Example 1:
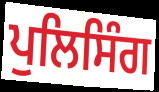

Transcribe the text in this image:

ਪੁਲਿਸਿੰਗ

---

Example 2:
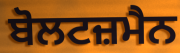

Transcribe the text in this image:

ਬੋਲਟਜ਼ਮੈਨ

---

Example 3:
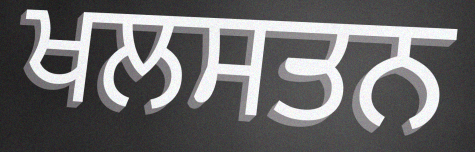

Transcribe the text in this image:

ਖਲਸਤਨ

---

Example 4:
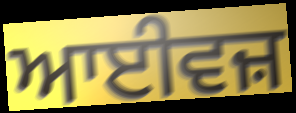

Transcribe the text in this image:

ਆਈਵਜ਼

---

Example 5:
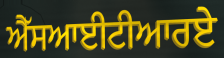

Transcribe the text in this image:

ਐੱਸਆਈਟੀਆਰਏ